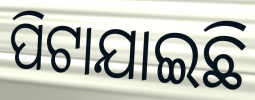
ପିଟାଯାଇଛି